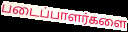
படைப்பாளர்களை